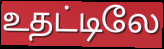
உதட்டிலே